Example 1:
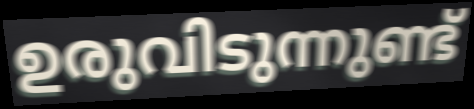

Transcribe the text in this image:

ഉരുവിടുന്നുണ്ട്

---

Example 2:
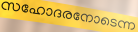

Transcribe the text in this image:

സഹോദരനോടെന്ന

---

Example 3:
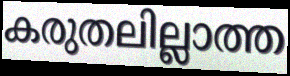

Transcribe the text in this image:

കരുതലില്ലാത്ത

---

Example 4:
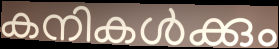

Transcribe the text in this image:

കനികൾക്കും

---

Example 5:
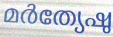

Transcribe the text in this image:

മർത്യേഷു